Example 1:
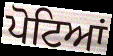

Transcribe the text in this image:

ਪੋਟਿਆਂ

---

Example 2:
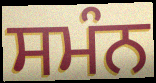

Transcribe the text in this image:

ਸਮੰਨ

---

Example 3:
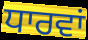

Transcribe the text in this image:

ਧਾਰਵਾਂ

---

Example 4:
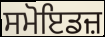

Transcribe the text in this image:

ਸਮੋਇਡਜ਼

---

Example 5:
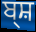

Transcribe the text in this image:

ਬ੍ਸ਼